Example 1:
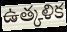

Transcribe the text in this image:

ఉత్కళిక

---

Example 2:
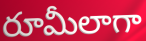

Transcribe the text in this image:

రూమీలాగా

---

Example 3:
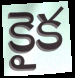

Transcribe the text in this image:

కైక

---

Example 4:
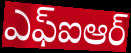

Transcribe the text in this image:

ఎఫ్ఐఆర్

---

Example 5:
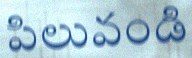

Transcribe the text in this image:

పిలువండి